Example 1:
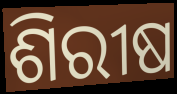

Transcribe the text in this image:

ଶିରୀଷ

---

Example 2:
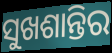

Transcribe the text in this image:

ସୁଖଶାନ୍ତିର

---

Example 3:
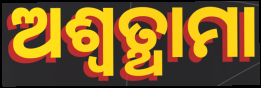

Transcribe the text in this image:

ଅଶ୍ଵତ୍ଥାମା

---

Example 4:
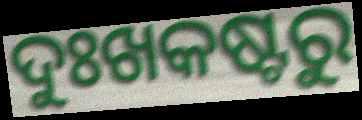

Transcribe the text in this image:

ଦୁଃଖକଷ୍ଟରୁ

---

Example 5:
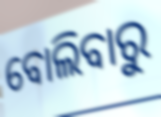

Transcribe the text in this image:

ବୋଲିବାରୁ